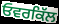
ਓਵਰਕਿੱਲ